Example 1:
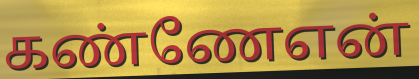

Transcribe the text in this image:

கண்ணேஎன்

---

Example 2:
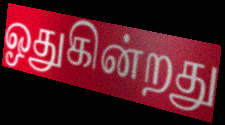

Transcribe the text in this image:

ஓதுகின்றது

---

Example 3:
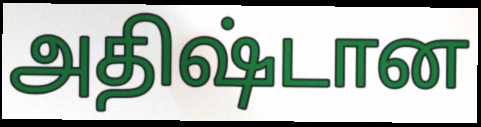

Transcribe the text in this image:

அதிஷ்டான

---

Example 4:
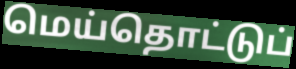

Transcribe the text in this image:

மெய்தொட்டுப்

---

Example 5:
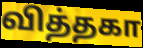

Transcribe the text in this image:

வித்தகா